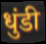
धुंडी